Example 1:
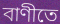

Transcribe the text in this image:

বাণীতে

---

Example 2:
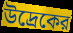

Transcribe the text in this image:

উদ্রেকের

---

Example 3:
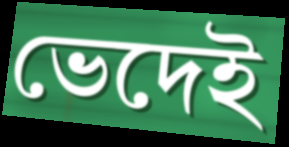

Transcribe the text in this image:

ভেদেই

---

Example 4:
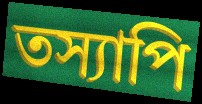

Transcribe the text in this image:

তস্যাপি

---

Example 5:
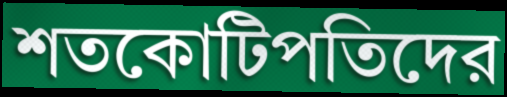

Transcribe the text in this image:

শতকোটিপতিদের